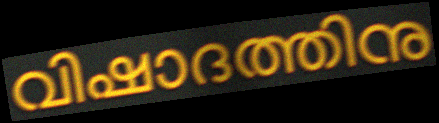
വിഷാദത്തിനു